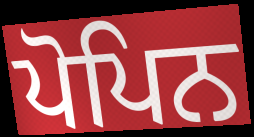
ਪੋਪਿਨ